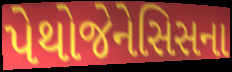
પેથોજેનેસિસના